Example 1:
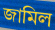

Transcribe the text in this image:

জামিল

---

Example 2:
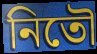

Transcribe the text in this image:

নিতৌ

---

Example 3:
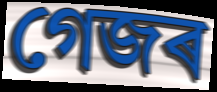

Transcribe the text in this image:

গেজৰ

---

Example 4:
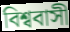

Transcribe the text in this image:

বিশ্ববাসী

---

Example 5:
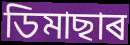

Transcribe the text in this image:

ডিমাছাৰ